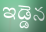
ఇడ్డెన